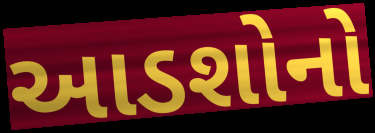
આડશોનો